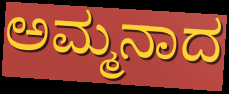
ಅಮ್ಮನಾದ